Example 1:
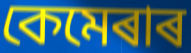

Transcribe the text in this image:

কেমেৰাৰ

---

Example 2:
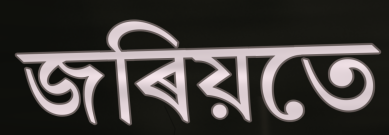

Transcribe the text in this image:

জৰিয়তে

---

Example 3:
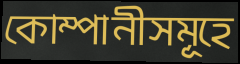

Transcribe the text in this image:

কোম্পানীসমূহে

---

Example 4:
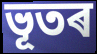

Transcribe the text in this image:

ভূতৰ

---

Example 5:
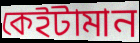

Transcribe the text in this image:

কেইটামান